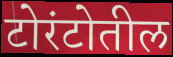
टोरंटोतील